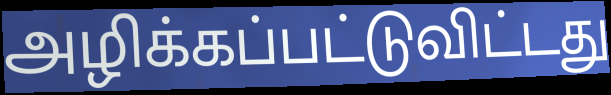
அழிக்கப்பட்டுவிட்டது